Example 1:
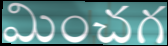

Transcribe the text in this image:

మించగ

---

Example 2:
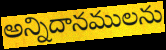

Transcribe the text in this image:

అన్నిదానములను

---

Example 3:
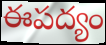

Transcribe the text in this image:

ఈపద్యం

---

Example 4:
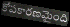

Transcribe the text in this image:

కోపకారణమైంది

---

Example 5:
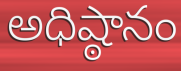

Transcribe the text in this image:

అధిష్ఠానం